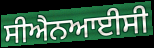
ਸੀਐਨਆਈਸੀ